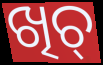
ଖିଚ୍